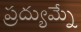
ప్రద్యుమ్నే